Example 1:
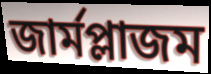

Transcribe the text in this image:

জার্মপ্লাজম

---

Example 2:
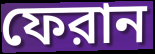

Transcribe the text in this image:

ফেরান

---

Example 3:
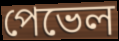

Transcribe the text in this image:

পেভেল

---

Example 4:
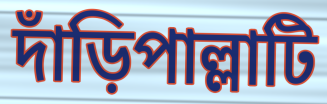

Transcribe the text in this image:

দাঁড়িপাল্লাটি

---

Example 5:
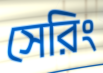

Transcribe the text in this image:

সেরিং